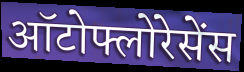
ऑटोफ्लोरेसेंस